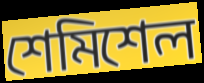
শেমিশেল